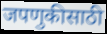
जपणुकीसाठी